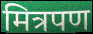
मित्रपण